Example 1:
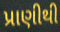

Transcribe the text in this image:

પ્રાણીથી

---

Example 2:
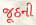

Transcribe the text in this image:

જૂઠની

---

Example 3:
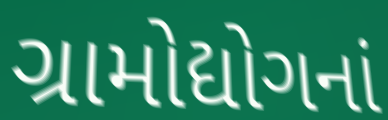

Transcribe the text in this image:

ગ્રામોદ્યોગનાં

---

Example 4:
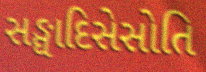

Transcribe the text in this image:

સઙ્ઘાદિસેસોતિ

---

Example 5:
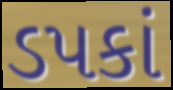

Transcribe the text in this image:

ડપકાં